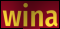
wina